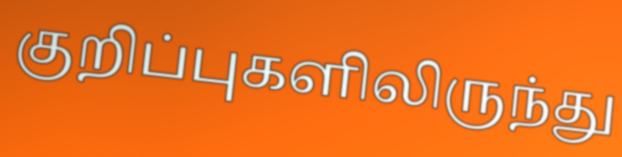
குறிப்புகளிலிருந்து